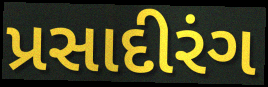
પ્રસાદીરંગ